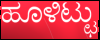
ಹೂಳಿಟ್ಟು